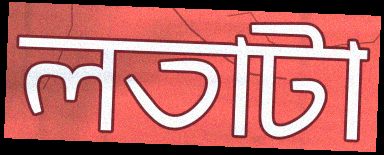
লতাটা